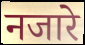
नजारे